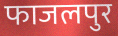
फाजलपुर